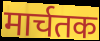
मार्चतक